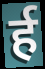
र्ह